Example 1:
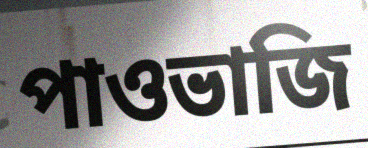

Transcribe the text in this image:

পাওভাজি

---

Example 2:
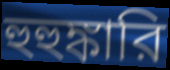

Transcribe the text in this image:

হুহুঙ্কারি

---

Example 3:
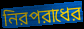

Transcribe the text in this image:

নিরপরাধের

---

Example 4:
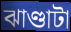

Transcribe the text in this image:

ঝাণ্ডাটা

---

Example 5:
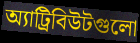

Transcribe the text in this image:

অ্যাট্রিবিউটগুলো